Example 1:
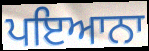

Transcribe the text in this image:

ਪਇਆਨਾ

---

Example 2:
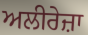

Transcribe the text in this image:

ਅਲੀਰੇਜ਼ਾ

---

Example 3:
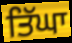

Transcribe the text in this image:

ਤਿੱਘਾ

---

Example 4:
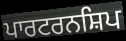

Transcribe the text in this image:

ਪਾਰਟਰਨਸ਼ਿਪ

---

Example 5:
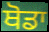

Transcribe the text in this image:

ਥੋਡਾ